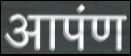
आपंण